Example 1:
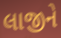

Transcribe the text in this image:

લાજીને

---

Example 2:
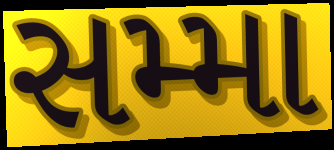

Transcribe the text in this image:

સમ્મા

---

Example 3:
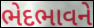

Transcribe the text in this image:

ભેદભાવને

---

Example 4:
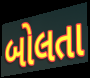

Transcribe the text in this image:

બોલતા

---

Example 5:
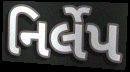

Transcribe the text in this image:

નિર્લેપ